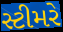
સ્ટીમરે